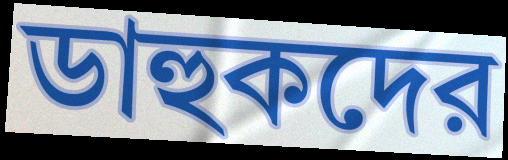
ডাহুকদের